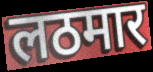
लठमार